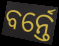
ବର୍ନ୍ତେ